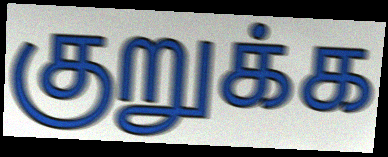
குறுக்க